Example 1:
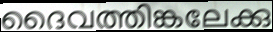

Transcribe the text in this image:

ദൈവത്തിങ്കലേക്കു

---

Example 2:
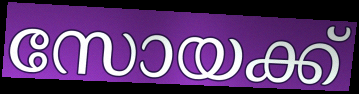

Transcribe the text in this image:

സോയക്ക്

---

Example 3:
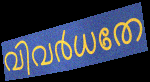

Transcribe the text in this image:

വിവർധതേ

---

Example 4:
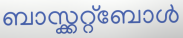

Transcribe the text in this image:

ബാസ്ക്കറ്റ്ബോൾ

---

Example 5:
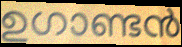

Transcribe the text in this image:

ഉഗാണ്ടൻ